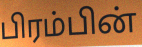
பிரம்பின்